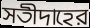
সতীদাহের